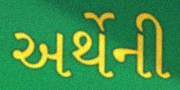
અર્થેની